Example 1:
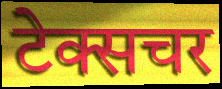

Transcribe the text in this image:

टेक्सचर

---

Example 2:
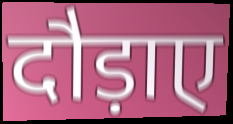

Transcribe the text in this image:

दौड़ाए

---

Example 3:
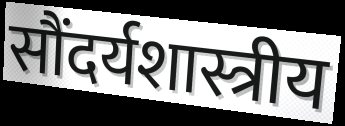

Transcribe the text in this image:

सौंदर्यशास्त्रीय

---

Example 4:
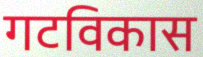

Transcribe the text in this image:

गटविकास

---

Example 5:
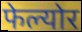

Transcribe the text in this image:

फेल्योर